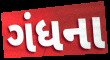
ગંધના